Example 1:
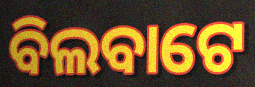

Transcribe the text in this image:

ବିଲବାଟେ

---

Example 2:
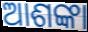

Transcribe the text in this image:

ଆଶଙ୍କା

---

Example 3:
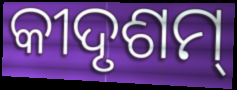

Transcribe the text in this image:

କୀଦୃଶମ୍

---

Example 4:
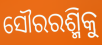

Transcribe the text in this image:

ସୌରରଶ୍ମିକୁ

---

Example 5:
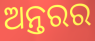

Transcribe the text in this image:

ଅନ୍ତରର